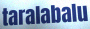
taralabalu